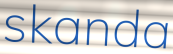
skanda